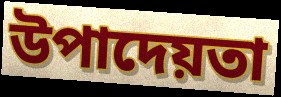
উপাদেয়তা